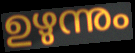
ഉഴുന്നും